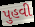
પુહવી